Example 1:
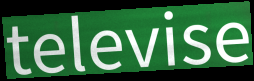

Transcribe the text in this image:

televise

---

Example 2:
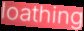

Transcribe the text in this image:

loathing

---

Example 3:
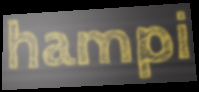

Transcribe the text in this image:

hampi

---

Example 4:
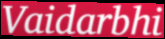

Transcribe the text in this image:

Vaidarbhi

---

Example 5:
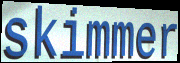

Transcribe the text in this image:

skimmer